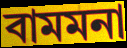
বামমনা